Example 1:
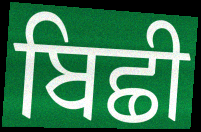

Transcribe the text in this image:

ਬਿਛੀ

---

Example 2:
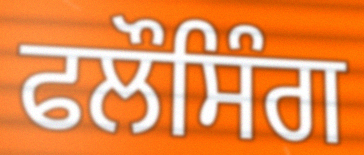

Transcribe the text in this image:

ਫਲੌਸਿੰਗ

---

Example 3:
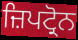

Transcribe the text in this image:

ਜ਼ਿਪਟ੍ਰੋਨ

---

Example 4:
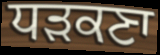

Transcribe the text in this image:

ਧੜਕਣਾ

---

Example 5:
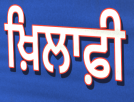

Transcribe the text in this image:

ਖ਼ਿਲਾਫ਼ੀ